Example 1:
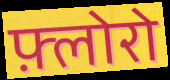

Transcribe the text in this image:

फ़्लोरो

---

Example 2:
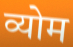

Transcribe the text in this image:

व्योम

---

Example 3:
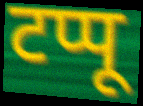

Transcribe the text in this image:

टप्पू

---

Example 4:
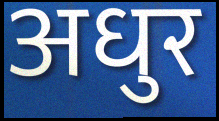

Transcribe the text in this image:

अधुर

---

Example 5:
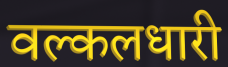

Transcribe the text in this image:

वल्कलधारी